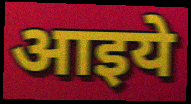
आइये